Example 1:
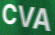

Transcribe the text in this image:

CVA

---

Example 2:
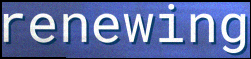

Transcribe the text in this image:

renewing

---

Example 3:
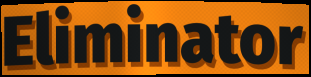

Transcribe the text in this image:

Eliminator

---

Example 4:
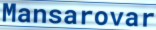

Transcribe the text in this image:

Mansarovar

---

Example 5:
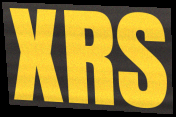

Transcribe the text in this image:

XRS